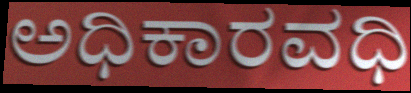
ಅಧಿಕಾರವಧಿ